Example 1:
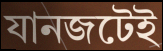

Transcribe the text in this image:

যানজটেই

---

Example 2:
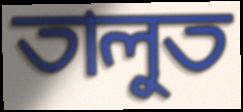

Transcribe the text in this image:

তালুত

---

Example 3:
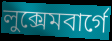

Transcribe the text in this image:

লুক্সেমবার্গে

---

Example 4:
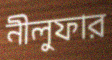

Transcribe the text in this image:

নীলুফার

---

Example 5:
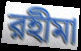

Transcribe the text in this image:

রহীমা